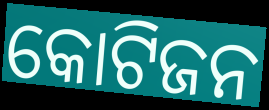
କୋଟିଜନ